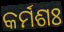
କର୍ମଶଃ